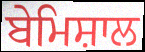
ਬੇਮਿਸ਼ਾਲ